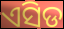
ଏସିଡ